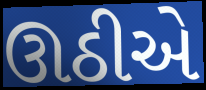
ઊઠીએ